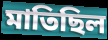
মাতিছিল